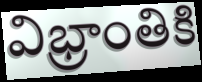
విభ్రాంతికి